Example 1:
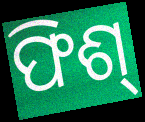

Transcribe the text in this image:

ଫିଶ୍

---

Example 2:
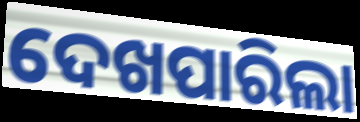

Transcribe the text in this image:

ଦେଖପାରିଲା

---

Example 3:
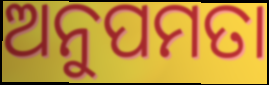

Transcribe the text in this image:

ଅନୁପମତା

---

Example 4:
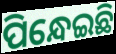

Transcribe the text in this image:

ପିନ୍ଧେଇଛି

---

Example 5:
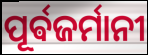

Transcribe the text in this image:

ପୂର୍ଵଜର୍ମାନୀ